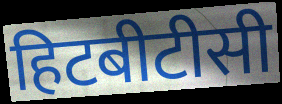
हिटबीटीसी